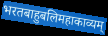
भरतबाहुबलिमहाकाव्यम्